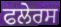
ਫਲੇਰਸ